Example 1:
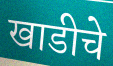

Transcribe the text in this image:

खाडीचे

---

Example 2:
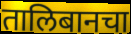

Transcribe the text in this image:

तालिबानचा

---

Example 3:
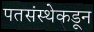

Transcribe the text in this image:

पतसंस्थेकडून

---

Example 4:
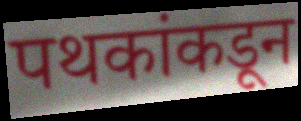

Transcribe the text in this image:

पथकांकडून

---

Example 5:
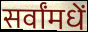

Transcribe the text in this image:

सर्वांमधें